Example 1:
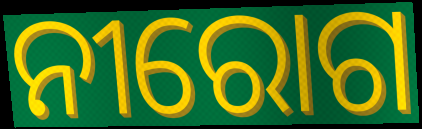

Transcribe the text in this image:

ନୀରୋଗ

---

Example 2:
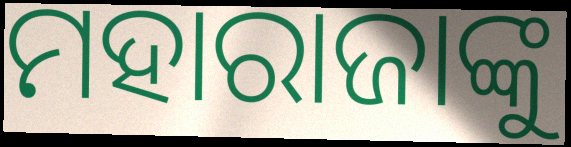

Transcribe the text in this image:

ମହାରାଜାଙ୍କୁ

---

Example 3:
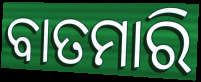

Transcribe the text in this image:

ବାତମାରି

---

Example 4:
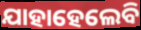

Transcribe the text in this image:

ଯାହାହେଲେବି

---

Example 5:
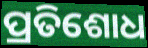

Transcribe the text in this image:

ପ୍ରତିଶୋଧ